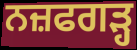
ਨਜ਼ਫਗੜ੍ਹ